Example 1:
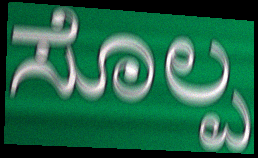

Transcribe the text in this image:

ಸೊಲ್ಪ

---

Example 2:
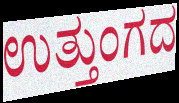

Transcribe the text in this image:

ಉತ್ತುಂಗದ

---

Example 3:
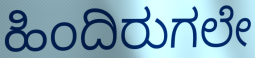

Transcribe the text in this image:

ಹಿಂದಿರುಗಲೇ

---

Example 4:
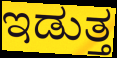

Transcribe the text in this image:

ಇಡುತ್ತ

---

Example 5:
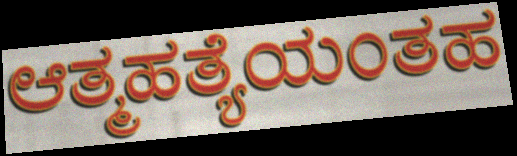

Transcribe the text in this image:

ಆತ್ಮಹತ್ಯೆಯಂತಹ